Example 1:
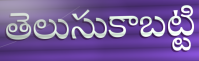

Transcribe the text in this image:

తెలుసుకాబట్టి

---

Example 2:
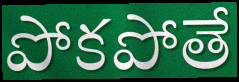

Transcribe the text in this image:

పోకపోతే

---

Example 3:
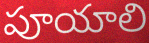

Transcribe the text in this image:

పూయాలి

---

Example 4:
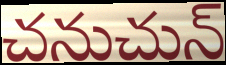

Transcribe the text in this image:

చనుచున్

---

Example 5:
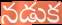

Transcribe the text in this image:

నడుక